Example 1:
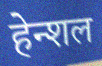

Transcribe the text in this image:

हेन्शल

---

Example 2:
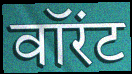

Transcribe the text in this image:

वॉरंट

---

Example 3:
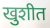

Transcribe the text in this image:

खुशीत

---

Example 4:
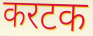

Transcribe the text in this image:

करटक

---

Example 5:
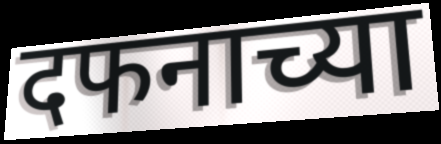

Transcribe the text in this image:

दफनाच्या